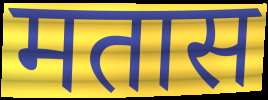
मतास